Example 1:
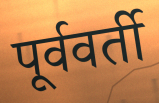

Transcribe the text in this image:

पूर्ववर्ती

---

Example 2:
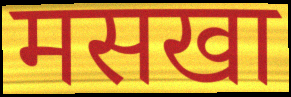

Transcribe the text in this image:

मसखा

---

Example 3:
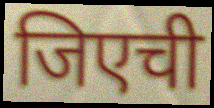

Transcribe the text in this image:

जिएची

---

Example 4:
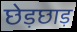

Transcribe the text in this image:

छेड़छाड़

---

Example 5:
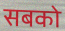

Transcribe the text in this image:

सबको